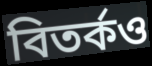
বিতৰ্কও